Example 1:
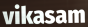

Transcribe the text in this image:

vikasam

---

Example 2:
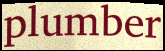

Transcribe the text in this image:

plumber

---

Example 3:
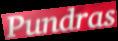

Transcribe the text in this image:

Pundras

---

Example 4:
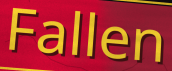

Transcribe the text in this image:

Fallen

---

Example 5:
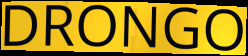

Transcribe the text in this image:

DRONGO